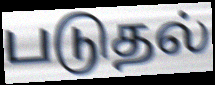
படுதல்